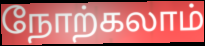
நோற்கலாம்